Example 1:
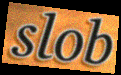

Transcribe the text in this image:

slob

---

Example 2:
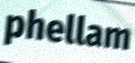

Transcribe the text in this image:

phellam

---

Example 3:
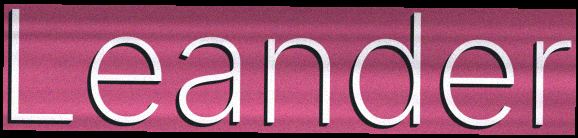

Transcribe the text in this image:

Leander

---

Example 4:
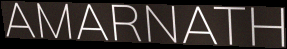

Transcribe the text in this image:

AMARNATH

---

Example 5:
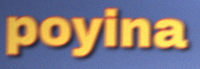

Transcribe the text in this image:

poyina